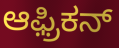
ಆಫ಼್ರಿಕನ್